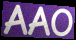
AAO